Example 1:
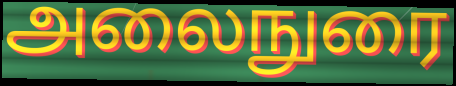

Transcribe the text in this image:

அலைநுரை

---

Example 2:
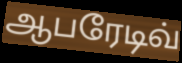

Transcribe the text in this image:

ஆபரேடிவ்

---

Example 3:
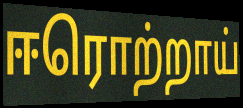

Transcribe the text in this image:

ஈரொற்றாய்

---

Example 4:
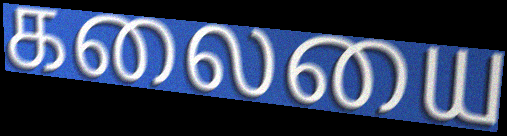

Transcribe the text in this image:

கலையை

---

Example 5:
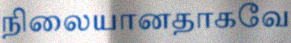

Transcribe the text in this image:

நிலையானதாகவே